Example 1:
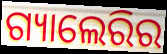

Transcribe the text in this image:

ଗ୍ୟାଲେରିର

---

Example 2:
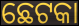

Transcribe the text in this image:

ଛେଟକା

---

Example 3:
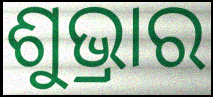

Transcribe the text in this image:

ଶୁଭ୍ରାର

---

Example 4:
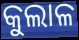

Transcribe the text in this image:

କୁଲାଳ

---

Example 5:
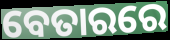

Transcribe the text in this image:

ବେତାରରେ